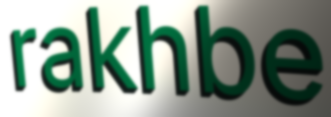
rakhbe